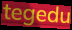
tegedu